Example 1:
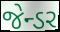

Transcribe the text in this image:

જેન્ડર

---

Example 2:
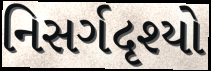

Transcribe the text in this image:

નિસર્ગદૃશ્યો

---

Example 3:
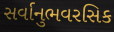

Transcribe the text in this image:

સર્વાનુભવરસિક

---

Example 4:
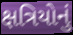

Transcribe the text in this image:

ક્ષત્રિયોનું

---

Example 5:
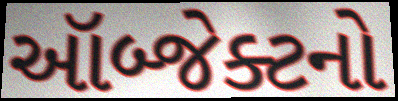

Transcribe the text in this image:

ઑબ્જેક્ટનો